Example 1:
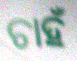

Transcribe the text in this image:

ଚାହଁ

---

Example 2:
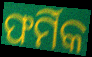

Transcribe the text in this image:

ଫର୍ମିକ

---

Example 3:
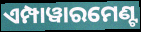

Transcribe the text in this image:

ଏମ୍ପାୱାରମେଣ୍ଟ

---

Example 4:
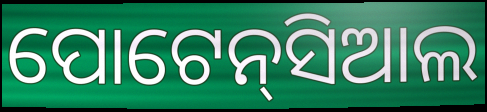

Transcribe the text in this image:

ପୋଟେନ୍‌ସିଆଲ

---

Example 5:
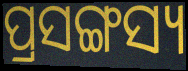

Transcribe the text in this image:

ପ୍ରସଙ୍ଗସ୍ୟ